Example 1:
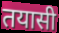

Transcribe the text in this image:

तयासी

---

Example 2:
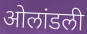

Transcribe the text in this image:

ओलांडली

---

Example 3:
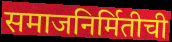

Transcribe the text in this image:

समाजनिर्मितीची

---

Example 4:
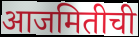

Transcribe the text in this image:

आजमितीची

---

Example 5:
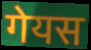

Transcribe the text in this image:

गेयस